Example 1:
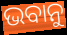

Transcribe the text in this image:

ଭବାନୁ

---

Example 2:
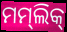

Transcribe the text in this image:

ମମ୍‌ଲିକ୍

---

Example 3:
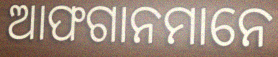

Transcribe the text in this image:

ଆଫଗାନମାନେ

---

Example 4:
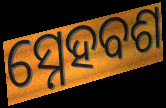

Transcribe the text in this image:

ସ୍ନେହବଶ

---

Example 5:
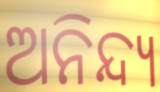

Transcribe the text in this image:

ଅନିନ୍ଦ୍ୟ